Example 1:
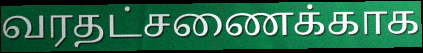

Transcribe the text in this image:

வரதட்சணைக்காக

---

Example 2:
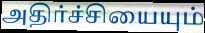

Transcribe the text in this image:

அதிர்ச்சியையும்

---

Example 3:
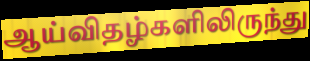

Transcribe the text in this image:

ஆய்விதழ்களிலிருந்து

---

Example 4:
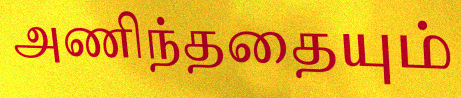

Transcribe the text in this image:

அணிந்ததையும்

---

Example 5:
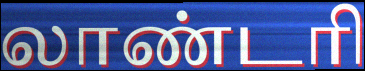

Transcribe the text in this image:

லாண்டரி